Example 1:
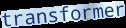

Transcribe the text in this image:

transformer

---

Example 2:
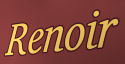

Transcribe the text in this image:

Renoir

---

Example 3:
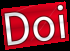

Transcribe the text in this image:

Doi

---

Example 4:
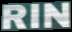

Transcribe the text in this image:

RIN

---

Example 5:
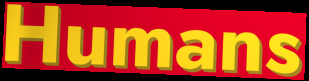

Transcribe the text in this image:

Humans